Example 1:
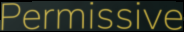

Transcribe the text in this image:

Permissive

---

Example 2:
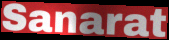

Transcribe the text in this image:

Sanarat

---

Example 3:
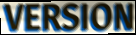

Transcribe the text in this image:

VERSION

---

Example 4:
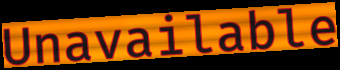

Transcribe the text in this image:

Unavailable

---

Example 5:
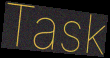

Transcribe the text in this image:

Task